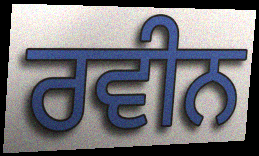
ਰਵੀਨ